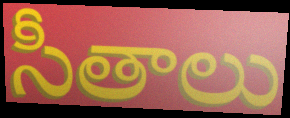
సీతాలు